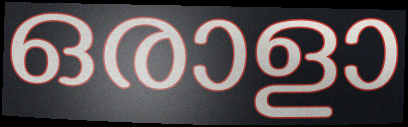
ഒരാളാ